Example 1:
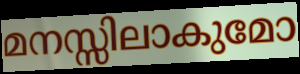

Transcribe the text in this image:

മനസ്സിലാകുമോ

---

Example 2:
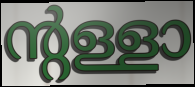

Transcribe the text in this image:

ന്റള്ളാ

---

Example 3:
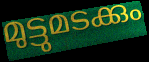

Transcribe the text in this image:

മുട്ടുമടക്കും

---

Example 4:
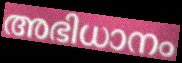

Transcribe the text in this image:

അഭിധാനം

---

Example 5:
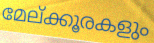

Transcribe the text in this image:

മേല്ക്കൂരകളും